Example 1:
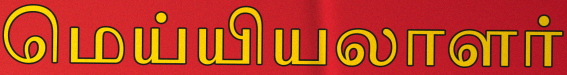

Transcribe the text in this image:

மெய்யியலாளர்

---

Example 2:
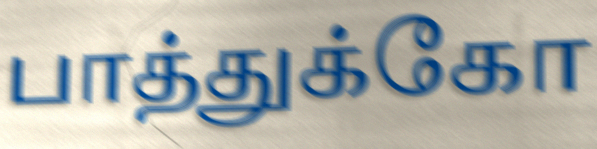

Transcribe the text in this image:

பாத்துக்கோ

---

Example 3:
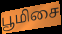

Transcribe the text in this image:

பூமிசை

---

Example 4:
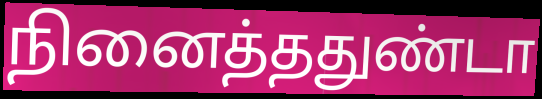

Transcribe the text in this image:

நினைத்ததுண்டா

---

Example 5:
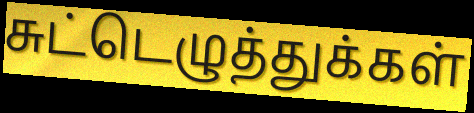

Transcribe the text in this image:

சுட்டெழுத்துக்கள்